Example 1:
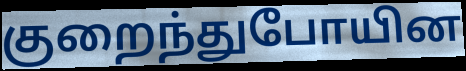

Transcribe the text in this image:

குறைந்துபோயின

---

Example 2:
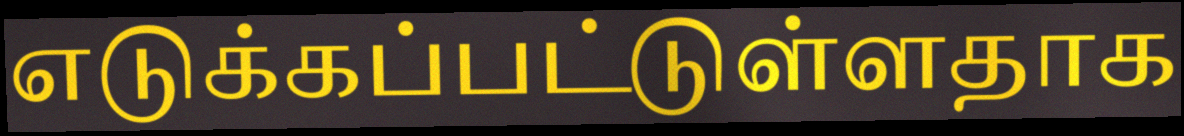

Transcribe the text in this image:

எடுக்கப்பட்டுள்ளதாக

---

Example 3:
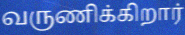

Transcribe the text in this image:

வருணிக்கிறார்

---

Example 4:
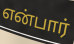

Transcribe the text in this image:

என்பார்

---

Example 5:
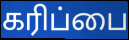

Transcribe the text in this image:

கரிப்பை